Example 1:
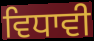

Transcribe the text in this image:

ਵਿਧਾਵੀ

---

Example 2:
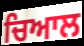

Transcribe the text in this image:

ਚਿਆਲ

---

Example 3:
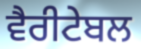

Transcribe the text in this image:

ਵੈਰੀਟੇਬਲ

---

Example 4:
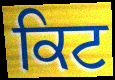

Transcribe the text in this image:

ਕਿਟ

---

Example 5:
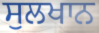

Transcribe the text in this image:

ਸੁਲਖਾਨ